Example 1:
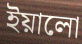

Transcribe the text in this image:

ইয়ালো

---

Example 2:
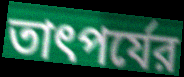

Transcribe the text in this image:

তাৎপর্যের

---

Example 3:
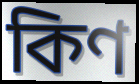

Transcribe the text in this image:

কিণ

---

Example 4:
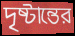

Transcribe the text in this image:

দৃষ্টান্তের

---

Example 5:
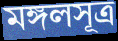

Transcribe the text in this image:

মঙ্গলসূত্র